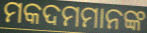
ମକଦମମାନଙ୍କ